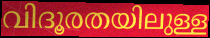
വിദൂരതയിലുള്ള